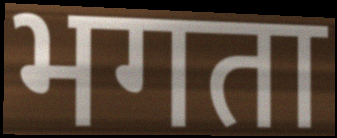
भगता